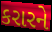
કરારને